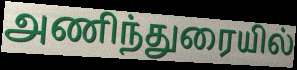
அணிந்துரையில்